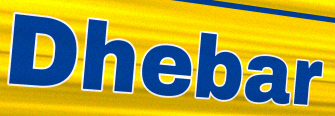
Dhebar